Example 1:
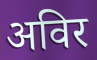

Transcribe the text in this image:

अविर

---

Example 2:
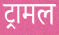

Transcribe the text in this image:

ट्रामल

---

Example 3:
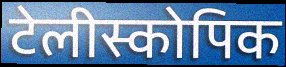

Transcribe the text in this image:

टेलीस्कोपिक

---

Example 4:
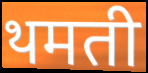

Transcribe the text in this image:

थमती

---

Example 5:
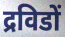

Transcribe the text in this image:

द्रविडों